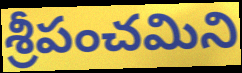
శ్రీపంచమిని